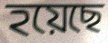
হয়েছে